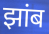
झांब